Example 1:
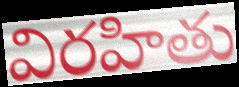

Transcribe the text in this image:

విరహితు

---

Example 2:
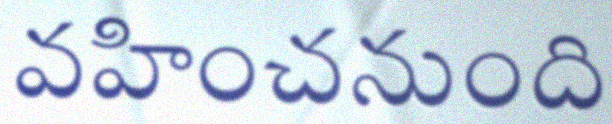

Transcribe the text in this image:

వహించనుంది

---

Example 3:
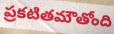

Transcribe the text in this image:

ప్రకటితమౌతోంది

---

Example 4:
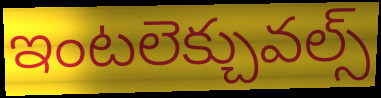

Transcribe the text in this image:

ఇంటలెక్చువల్స్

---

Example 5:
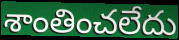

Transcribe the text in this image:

శాంతించలేదు